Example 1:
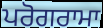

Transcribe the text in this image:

ਪਰੋਗਰਾਮਾ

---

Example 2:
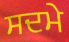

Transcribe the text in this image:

ਸਦਮੇ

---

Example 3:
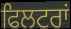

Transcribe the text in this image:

ਫਿਲਟਰਾਂ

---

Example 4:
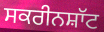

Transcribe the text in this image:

ਸਕਰੀਨਸ਼ਾੱਟ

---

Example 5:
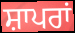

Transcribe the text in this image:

ਸ਼ਾਪਰਾਂ